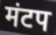
मंटप